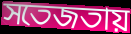
সতেজতায়